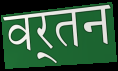
वर्तन